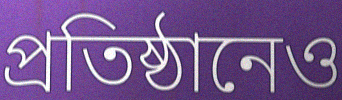
প্রতিষ্ঠানেও